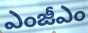
ఎంజీఎం